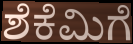
ಶೆಕೆಮಿಗೆ